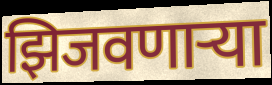
झिजवणाऱ्या